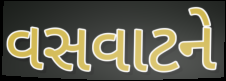
વસવાટને